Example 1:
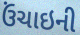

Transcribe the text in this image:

ઉંચાઇની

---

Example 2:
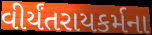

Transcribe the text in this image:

વીર્યંતરાયકર્મના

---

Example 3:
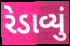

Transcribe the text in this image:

રેડાવ્યું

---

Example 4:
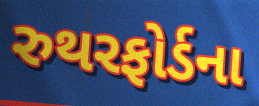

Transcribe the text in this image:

રુથરફોર્ડના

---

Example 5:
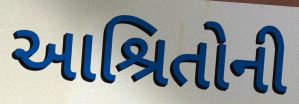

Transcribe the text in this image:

આશ્રિતોની